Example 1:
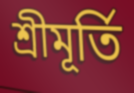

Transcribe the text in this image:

শ্রীমূর্তি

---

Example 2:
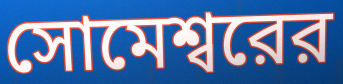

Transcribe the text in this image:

সোমেশ্বরের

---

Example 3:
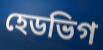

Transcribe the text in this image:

হেডভিগ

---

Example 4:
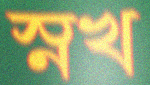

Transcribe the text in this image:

স্নখ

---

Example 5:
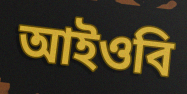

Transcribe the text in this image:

আইওবি